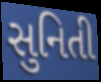
સુનિતી